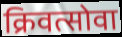
क्रिवत्सोवा